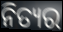
ନିତ୍ୟର